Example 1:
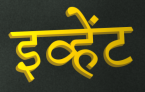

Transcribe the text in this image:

इव्हेंट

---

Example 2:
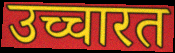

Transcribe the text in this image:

उच्चारत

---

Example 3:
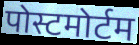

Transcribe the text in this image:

पोस्टमोर्टम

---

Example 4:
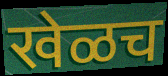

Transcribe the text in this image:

खेळच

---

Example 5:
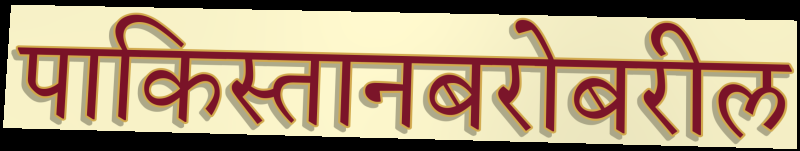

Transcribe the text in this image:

पाकिस्तानबरोबरील